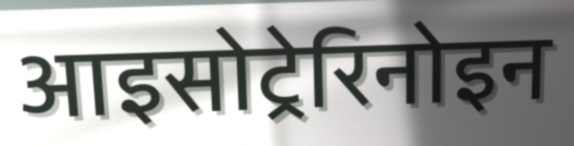
आइसोट्रेरिनोइन